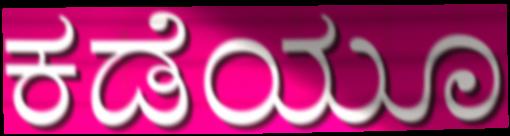
ಕಡೆಯೂ